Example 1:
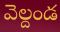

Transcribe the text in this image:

వెల్దండ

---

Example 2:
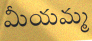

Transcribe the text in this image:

మీయమ్మ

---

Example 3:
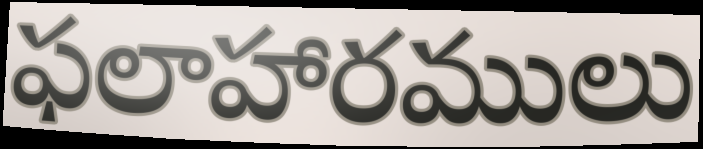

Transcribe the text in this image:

ఫలాహారములు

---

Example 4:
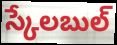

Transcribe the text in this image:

స్కేలబుల్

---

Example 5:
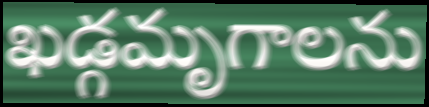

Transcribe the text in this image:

ఖడ్గమృగాలను